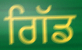
ਗਿੱਡ